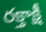
రక్తాక్షీ